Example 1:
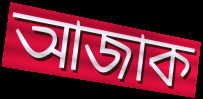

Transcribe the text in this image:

আজাক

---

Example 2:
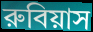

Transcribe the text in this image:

রুবিয়াস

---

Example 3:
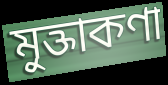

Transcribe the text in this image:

মুক্তাকণা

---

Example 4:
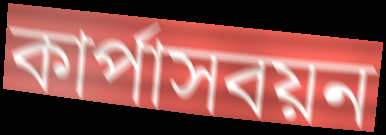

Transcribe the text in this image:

কার্পাসবয়ন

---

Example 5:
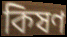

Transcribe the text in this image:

কিষণ